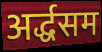
अर्द्धसम